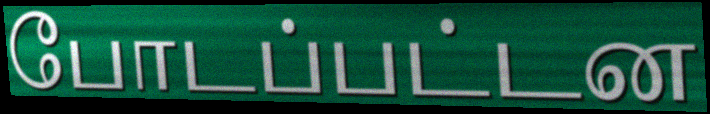
போடப்பட்டன